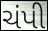
ચંપી